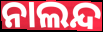
ନାଲନ୍ଦ